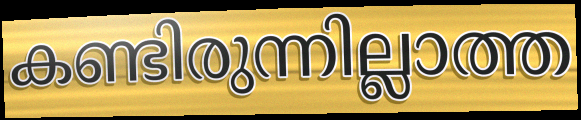
കണ്ടിരുന്നില്ലാത്ത